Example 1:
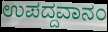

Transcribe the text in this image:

ಉಪದ್ದವಾನಂ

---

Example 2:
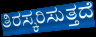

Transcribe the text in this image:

ತಿರಸ್ಕರಿಸುತ್ತದೆ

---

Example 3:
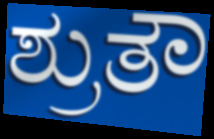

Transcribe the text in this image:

ಶ್ರುತೌ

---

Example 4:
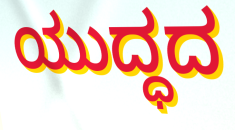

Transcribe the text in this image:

ಯುದ್ಧದ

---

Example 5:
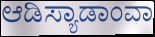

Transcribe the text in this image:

ಆಡಿಸ್ಯಾಡಾಂವಾ